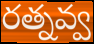
రత్నవ్వ